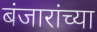
बंजारांच्या